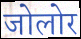
जोलोर